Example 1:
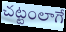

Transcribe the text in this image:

చట్టంలాగే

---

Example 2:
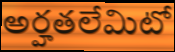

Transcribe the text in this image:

అర్హతలేమిటో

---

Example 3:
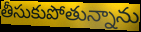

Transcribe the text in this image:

తీసుకుపోతున్నాను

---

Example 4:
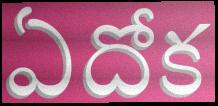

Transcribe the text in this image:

ఏదోక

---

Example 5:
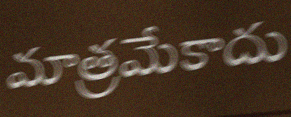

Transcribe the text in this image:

మాత్రమేకాదు